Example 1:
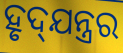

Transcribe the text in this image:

ହୃଦ୍‍ଯନ୍ତ୍ରର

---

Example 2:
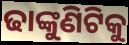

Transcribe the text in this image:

ଢାଙ୍କୁଣିଟିକୁ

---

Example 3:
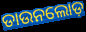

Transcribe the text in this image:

ଡାଉନଲୋଡ଼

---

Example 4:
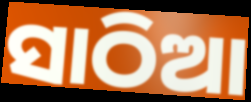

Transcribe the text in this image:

ସାଠିଆ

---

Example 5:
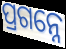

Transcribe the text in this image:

ପ୍ରଗନ୍ନେ